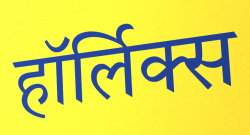
हॉर्लिक्‍स